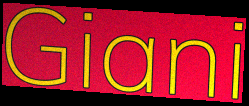
Giani